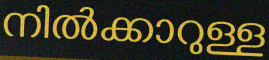
നിൽക്കാറുള്ള